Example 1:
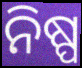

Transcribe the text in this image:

ନିଷ୍ପ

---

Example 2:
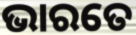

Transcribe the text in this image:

ଭାରତେ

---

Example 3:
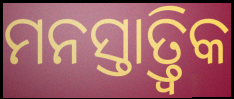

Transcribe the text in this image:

ମନସ୍ତାତ୍ତ୍ଵିକ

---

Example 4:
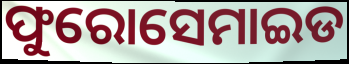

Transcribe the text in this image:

ଫୁରୋସେମାଇଡ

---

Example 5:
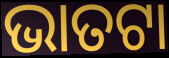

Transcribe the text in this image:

ଭାତଟା